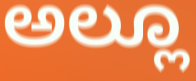
ಅಲ್ಲೂ